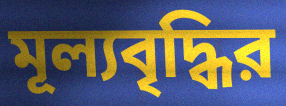
মূল্যবৃদ্ধির